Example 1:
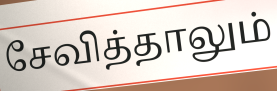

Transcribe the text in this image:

சேவித்தாலும்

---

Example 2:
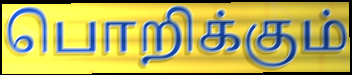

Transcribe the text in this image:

பொறிக்கும்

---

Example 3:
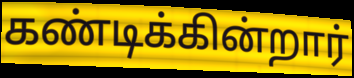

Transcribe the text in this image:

கண்டிக்கின்றார்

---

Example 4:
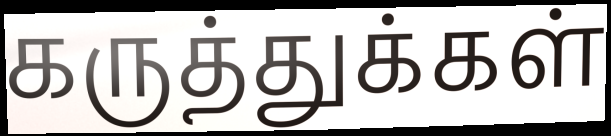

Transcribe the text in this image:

கருத்துக்கள்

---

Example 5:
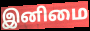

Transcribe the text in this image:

இனிமை